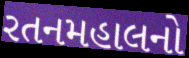
રતનમહાલનો